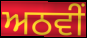
ਅਠਵੀਂ